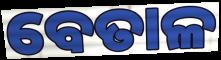
ବେତାଳ